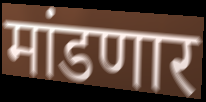
मांडणार